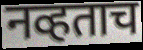
नव्हताच